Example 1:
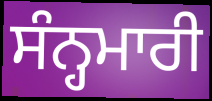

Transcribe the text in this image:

ਸੰਨ੍ਹਮਾਰੀ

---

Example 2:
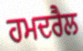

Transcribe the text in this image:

ਹਮਦਰੈਲ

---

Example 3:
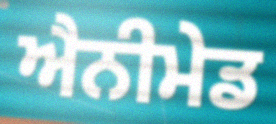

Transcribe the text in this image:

ਐਨੀਮੇਡ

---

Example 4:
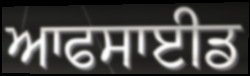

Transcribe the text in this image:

ਆਫਸਾਈਡ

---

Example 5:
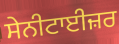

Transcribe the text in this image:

ਸੇਨੀਟਾਈਜ਼ਰ